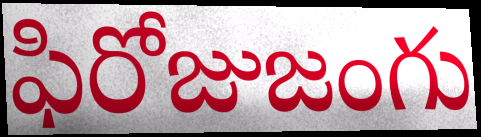
ఫిరోజుజంగు